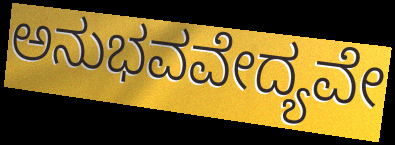
ಅನುಭವವೇದ್ಯವೇ